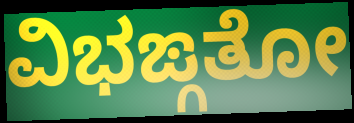
ವಿಭಙ್ಗತೋ